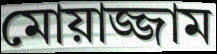
মোয়াজ্জাম